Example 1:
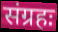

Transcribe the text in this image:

संग्रहः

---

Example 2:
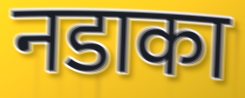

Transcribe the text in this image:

नडाका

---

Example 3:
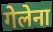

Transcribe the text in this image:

गेलेना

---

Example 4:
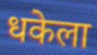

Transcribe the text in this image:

धकेला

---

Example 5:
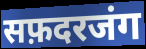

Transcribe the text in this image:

सफ़दरजंग